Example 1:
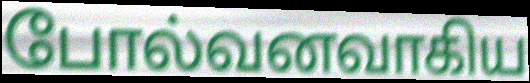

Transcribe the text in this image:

போல்வனவாகிய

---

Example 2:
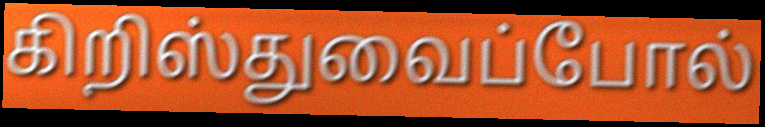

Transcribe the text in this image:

கிறிஸ்துவைப்போல்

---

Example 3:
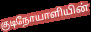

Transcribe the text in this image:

குடிநோயாளியின்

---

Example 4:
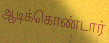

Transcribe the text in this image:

ஆடிக்கொண்டார்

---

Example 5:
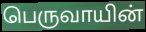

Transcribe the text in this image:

பெருவாயின்